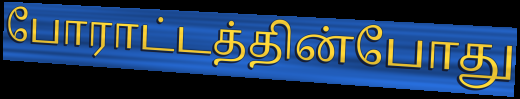
போராட்டத்தின்போது